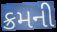
ક્રમની